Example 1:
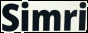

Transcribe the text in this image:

Simri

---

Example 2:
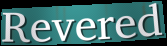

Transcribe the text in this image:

Revered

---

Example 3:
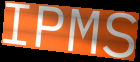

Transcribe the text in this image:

IPMS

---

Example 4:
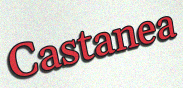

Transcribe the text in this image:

Castanea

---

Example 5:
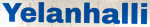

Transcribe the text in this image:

Yelanhalli